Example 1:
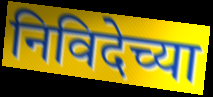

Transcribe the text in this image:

निविदेच्या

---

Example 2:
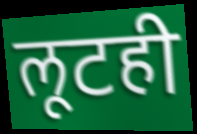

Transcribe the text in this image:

लूटही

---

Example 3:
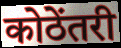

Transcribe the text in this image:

कोठेंतरी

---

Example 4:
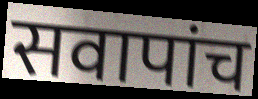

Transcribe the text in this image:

सवापांच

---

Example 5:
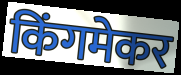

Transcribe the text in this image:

किंगमेकर